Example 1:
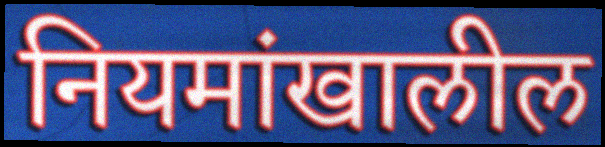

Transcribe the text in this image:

नियमांखालील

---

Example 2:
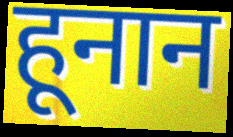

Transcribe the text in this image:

हूनान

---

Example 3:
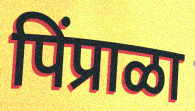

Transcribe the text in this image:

पिंप्राळा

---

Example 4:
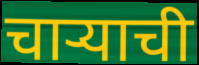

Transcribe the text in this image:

चाऱ्याची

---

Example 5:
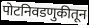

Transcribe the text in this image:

पोटनिवडणुकीतून